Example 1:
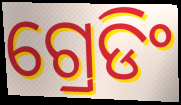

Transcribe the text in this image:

ଗ୍ରେଡିଂ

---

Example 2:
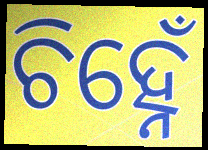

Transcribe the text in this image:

ଚିହ୍ନେଁ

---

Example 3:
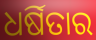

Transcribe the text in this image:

ଧର୍ଷିତାର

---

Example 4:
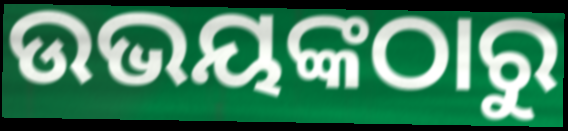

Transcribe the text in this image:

ଉଭୟଙ୍କଠାରୁ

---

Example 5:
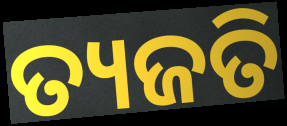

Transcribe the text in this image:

ତ୍ୟଜତି